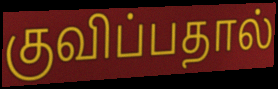
குவிப்பதால்